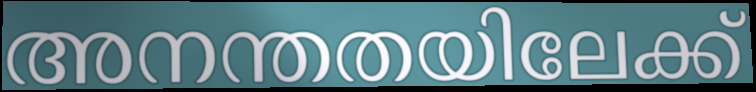
അനന്തതയിലേക്ക്